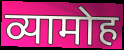
व्यामोह